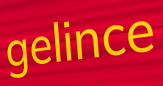
gelince